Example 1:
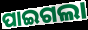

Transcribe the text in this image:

ପାଇଗଲା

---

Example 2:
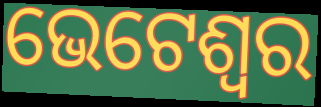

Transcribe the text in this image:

ଭେଟେଶ୍ୱର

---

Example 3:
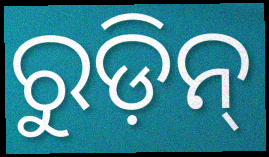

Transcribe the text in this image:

ରୁଡ଼ିନ୍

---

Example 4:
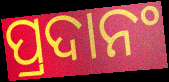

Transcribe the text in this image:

ପ୍ରଦାନଂ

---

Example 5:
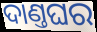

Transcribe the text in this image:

ଦାଣ୍ତଘର